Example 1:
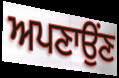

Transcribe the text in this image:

ਅਪਣਾਉਂਣ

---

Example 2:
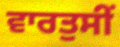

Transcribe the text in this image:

ਵਾਰਤੁਸੀਂ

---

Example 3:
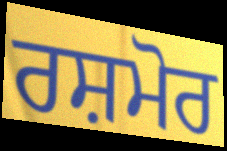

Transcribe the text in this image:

ਰਸ਼ਮੋਰ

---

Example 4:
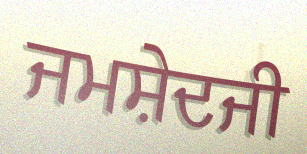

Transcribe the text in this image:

ਜਮਸ਼ੇਦਜੀ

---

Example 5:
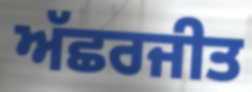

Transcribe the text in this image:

ਅੱਛਰਜੀਤ